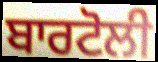
ਬਾਰਟੋਲੀ